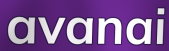
avanai